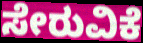
ಸೇರುವಿಕೆ